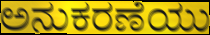
ಅನುಕರಣೆಯು